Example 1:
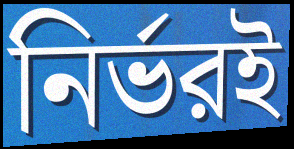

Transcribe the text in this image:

নির্ভরই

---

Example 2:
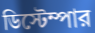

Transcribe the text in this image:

ডিস্টেম্পার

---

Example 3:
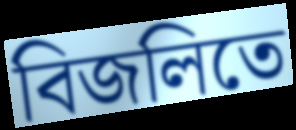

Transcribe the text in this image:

বিজলিতে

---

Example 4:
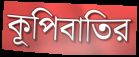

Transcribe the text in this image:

কূপিবাতির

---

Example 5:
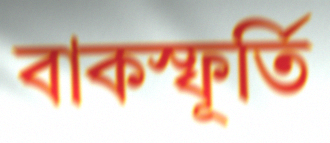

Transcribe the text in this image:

বাকস্ফূর্তি